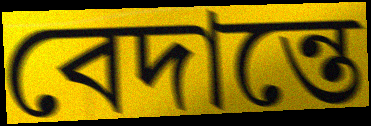
বেদান্তে